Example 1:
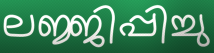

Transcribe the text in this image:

ലജ്ജിപ്പിച്ചു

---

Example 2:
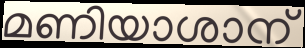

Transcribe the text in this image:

മണിയാശാന്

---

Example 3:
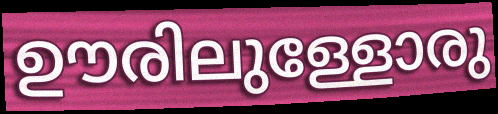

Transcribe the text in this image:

ഊരിലുള്ളോരു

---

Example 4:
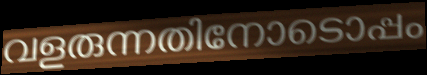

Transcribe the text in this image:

വളരുന്നതിനോടൊപ്പം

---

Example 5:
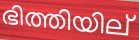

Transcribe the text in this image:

ഭിത്തിയില്